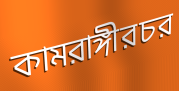
কামরাঙ্গীরচর